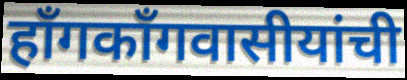
हाँगकाँगवासीयांची